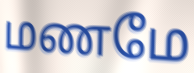
மணமே